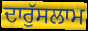
ਦਾਰੁੱਸਲਾਮ